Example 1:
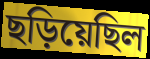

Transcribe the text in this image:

ছড়িয়েছিল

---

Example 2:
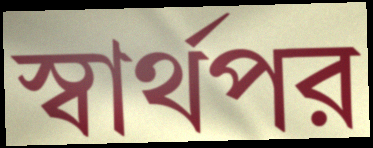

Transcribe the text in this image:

স্বার্থপর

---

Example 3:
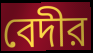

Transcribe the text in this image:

বেদীর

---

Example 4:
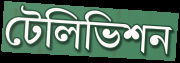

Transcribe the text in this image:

টেলিভিশন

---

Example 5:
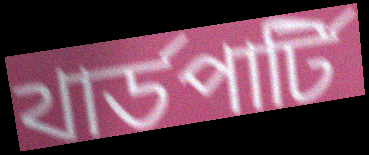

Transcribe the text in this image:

থার্ডপার্টি